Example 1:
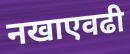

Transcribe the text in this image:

नखाएवढी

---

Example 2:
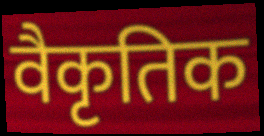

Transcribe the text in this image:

वैकृतिक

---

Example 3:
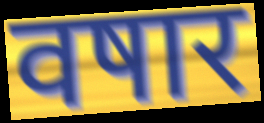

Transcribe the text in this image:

वषार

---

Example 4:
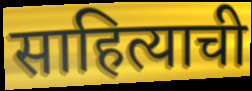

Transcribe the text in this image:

साहित्याची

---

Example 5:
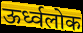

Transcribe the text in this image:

ऊर्ध्वलोक